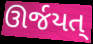
ઊર્જયત્